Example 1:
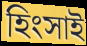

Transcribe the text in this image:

হিংসাই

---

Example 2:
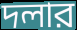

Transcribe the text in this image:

দলার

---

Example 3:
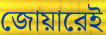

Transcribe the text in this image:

জোয়ারেই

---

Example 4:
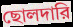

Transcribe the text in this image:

ছোলদারি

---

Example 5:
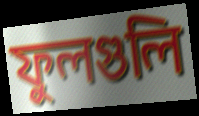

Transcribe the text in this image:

ফুলগুলি